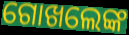
ଗୋଖଲେଙ୍କ